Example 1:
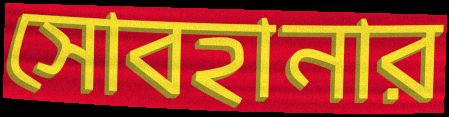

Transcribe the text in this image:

সোবহানার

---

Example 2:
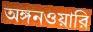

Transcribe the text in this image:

অঙ্গনওয়ারি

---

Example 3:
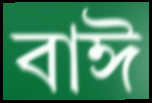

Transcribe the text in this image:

বাঈ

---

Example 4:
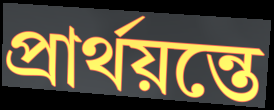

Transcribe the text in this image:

প্রার্থয়ন্তে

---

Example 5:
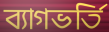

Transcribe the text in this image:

ব্যাগভর্তি